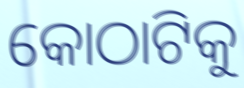
କୋଠାଟିକୁ